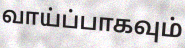
வாய்ப்பாகவும்